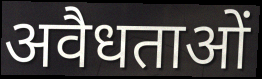
अवैधताओं